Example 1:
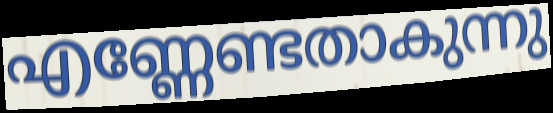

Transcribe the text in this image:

എണ്ണേണ്ടതാകുന്നു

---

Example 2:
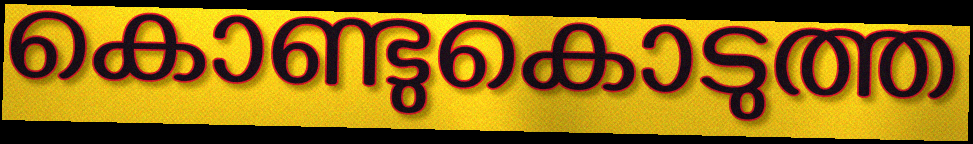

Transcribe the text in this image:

കൊണ്ടുകൊടുത്ത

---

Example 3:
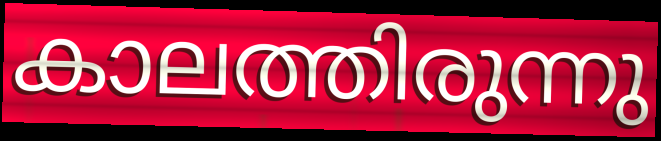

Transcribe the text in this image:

കാലത്തിരുന്നു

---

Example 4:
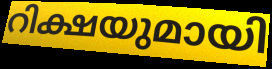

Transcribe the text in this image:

റിക്ഷയുമായി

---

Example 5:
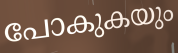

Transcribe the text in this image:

പോകുകയും